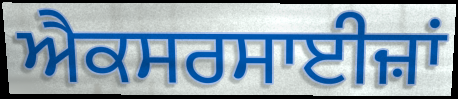
ਐਕਸਰਸਾਈਜ਼ਾਂ